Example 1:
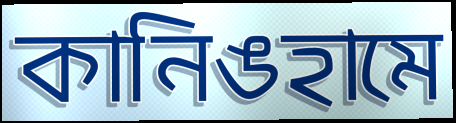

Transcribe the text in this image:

কানিঙহামে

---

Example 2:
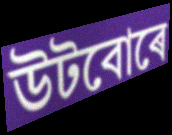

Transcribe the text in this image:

উটবোৰে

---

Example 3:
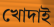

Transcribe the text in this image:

খোদাই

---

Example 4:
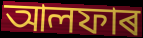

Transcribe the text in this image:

আলফাৰ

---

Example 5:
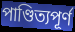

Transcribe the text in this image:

পাণ্ডিত্যপূৰ্ণ